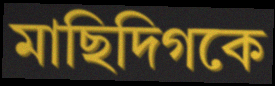
মাছিদিগকে